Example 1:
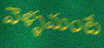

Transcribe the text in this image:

వెళ్ళమంటే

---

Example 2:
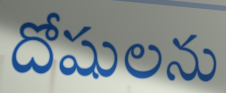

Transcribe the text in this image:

దోషులను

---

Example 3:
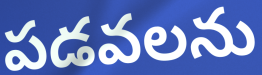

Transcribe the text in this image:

పడవలను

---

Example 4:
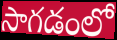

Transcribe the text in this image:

సాగడంలో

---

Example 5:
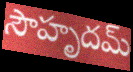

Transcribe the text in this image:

సౌహృదమ్